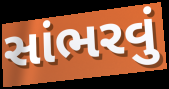
સાંભરવું